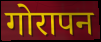
गोरापन